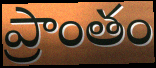
ప్రాంతం